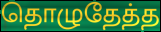
தொழுதேத்த